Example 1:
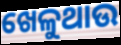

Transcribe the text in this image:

ଖେଳୁଥାଉ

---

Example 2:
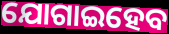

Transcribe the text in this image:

ଯୋଗାଇହେବ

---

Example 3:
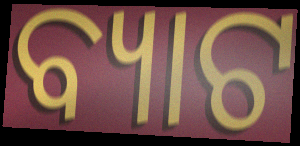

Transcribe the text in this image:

ବ୍ୟାଟ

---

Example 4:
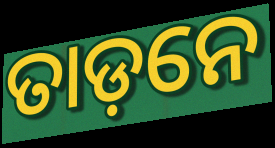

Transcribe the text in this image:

ତାଡ଼ନେ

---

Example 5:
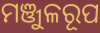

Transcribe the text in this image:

ମଞ୍ଜୁଳରୂପ